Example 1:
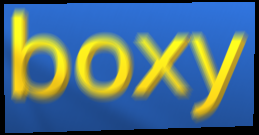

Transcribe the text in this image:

boxy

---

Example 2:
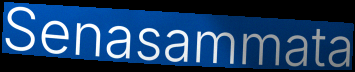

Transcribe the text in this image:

Senasammata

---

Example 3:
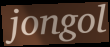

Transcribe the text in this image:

jongol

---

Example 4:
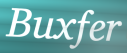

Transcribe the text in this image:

Buxfer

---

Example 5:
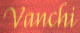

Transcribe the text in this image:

Vanchi